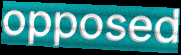
opposed